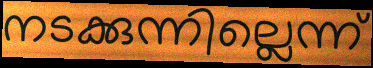
നടക്കുന്നില്ലെന്ന്